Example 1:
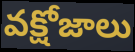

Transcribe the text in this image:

వక్షోజాలు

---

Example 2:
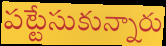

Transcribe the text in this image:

పట్టేసుకున్నారు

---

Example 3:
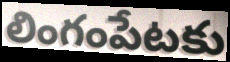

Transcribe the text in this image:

లింగంపేటకు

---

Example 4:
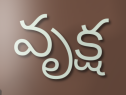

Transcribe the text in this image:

వృక్ష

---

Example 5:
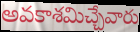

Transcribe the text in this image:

అవకాశమిచ్చేవారు